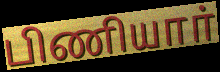
பிணியார்